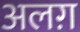
अलग़